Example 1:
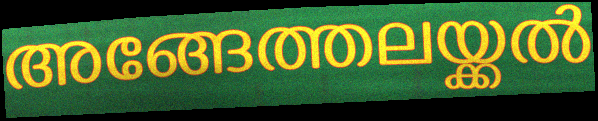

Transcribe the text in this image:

അങ്ങേത്തലയ്ക്കൽ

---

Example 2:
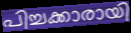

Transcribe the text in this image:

പിച്ചക്കാരായി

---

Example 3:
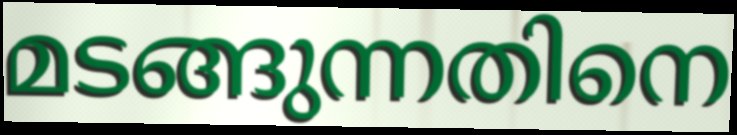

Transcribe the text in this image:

മടങ്ങുന്നതിനെ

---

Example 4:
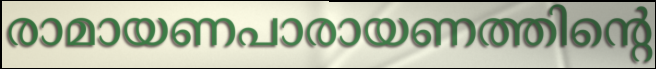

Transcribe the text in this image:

രാമായണപാരായണത്തിന്റെ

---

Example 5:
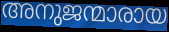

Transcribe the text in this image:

അനുജന്മാരായ